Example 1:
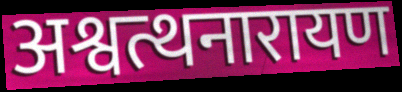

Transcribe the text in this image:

अश्वत्थनारायण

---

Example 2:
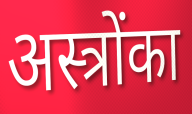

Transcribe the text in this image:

अस्त्रोंका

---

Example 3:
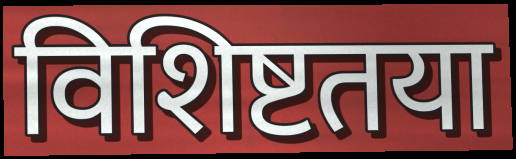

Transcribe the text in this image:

विशिष्टतया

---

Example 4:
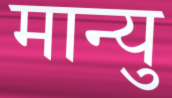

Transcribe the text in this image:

मान्यु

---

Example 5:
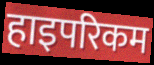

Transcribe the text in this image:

हाइपरिकम